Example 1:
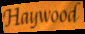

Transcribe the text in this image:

Haywood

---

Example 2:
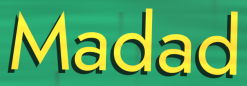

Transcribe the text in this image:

Madad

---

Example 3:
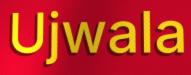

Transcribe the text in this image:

Ujwala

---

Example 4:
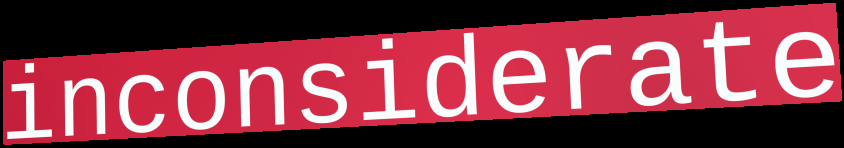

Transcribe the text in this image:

inconsiderate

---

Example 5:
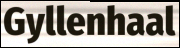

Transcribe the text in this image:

Gyllenhaal